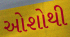
ઓશોથી